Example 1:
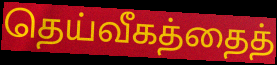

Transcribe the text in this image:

தெய்வீகத்தைத்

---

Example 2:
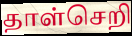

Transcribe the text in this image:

தாள்செறி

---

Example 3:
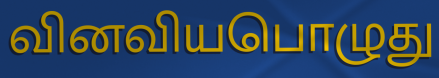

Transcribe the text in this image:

வினவியபொழுது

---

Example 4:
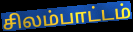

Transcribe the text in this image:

சிலம்பாட்டம்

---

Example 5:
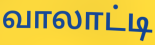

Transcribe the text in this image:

வாலாட்டி